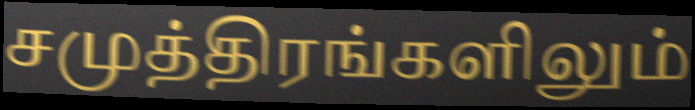
சமுத்திரங்களிலும்